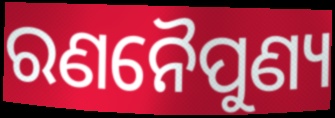
ରଣନୈପୁଣ୍ୟ